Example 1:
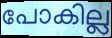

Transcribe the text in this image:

പോകില്ല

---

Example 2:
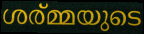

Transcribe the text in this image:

ശര്മ്മയുടെ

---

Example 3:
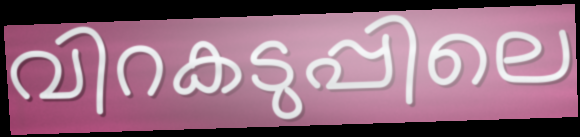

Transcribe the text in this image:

വിറകടുപ്പിലെ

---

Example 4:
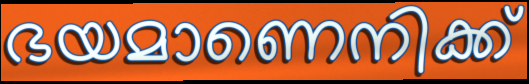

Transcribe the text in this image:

ഭയമാണെനിക്ക്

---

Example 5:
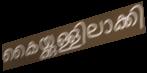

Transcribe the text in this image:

കൈയ്ക്കുള്ളിലാക്കി